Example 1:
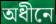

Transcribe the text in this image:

অধীনে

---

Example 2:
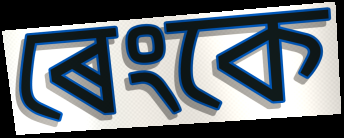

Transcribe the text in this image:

ৰেংকে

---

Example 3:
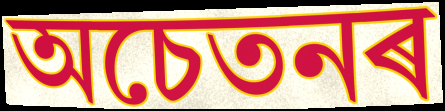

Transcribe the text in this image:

অচেতনৰ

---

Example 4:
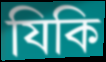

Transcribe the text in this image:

যিকি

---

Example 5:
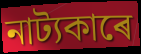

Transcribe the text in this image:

নাট্যকাৰে